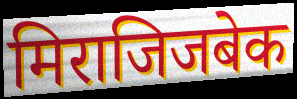
मिराजिजबेक